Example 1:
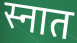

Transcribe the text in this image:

स्नात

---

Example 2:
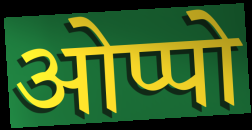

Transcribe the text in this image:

ओप्पो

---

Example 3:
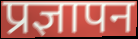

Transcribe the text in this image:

प्रज्ञापन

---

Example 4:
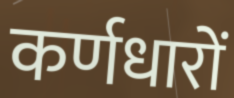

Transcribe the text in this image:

कर्णधारों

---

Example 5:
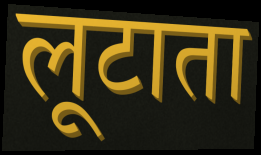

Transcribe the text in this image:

लूटाता